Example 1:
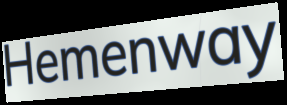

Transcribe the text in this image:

Hemenway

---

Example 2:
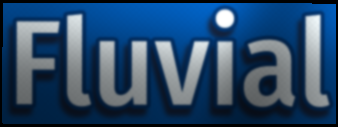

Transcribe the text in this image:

Fluvial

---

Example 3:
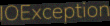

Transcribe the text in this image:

IOException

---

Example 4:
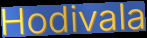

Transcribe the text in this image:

Hodivala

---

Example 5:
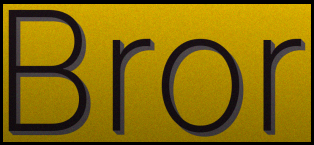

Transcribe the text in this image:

Bror